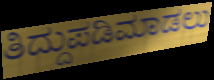
ತಿದ್ದುಪಡಿಮಾಡಲು